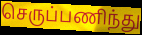
செருப்பணிந்து